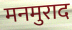
मनमुराद